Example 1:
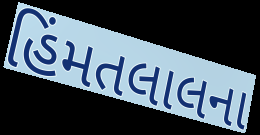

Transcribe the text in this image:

હિંમતલાલના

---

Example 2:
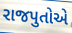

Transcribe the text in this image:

રાજપુતોએ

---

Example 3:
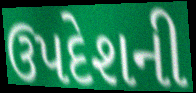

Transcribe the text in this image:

ઉપદેશની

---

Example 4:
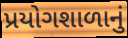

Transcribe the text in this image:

પ્રયોગશાળાનું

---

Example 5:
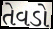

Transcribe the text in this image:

તેવડો